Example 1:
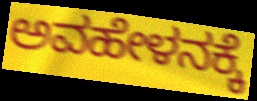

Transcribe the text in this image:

ಅವಹೇಳನಕ್ಕೆ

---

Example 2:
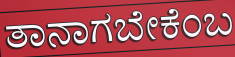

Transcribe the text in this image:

ತಾನಾಗಬೇಕೆಂಬ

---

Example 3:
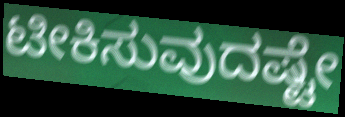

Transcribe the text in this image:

ಟೀಕಿಸುವುದಷ್ಟೇ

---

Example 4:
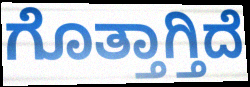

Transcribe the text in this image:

ಗೊತ್ತಾಗ್ತಿದೆ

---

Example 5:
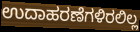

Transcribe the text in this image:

ಉದಾಹರಣೆಗಳಿರಲಿಲ್ಲ